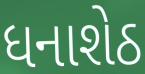
ધનાશેઠ